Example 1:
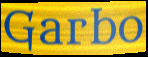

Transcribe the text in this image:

Garbo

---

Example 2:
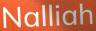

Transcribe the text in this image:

Nalliah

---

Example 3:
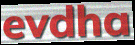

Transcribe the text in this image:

evdha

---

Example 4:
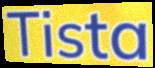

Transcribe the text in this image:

Tista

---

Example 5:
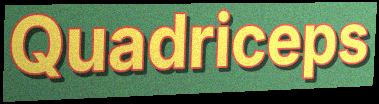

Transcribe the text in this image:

Quadriceps